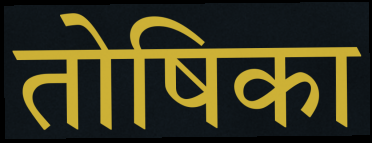
तोषिका